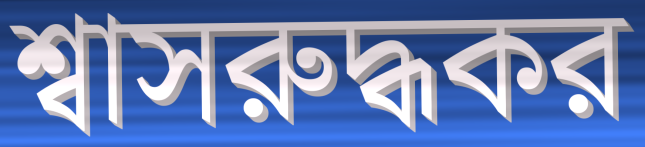
শ্বাসরুদ্ধকর